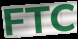
FTC